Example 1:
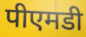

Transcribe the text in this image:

पीएमडी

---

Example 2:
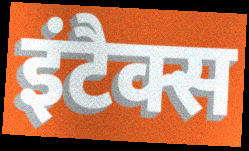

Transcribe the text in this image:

इंटैक्स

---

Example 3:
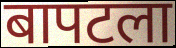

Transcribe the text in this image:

बापटला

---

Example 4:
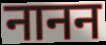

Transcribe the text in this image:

नानन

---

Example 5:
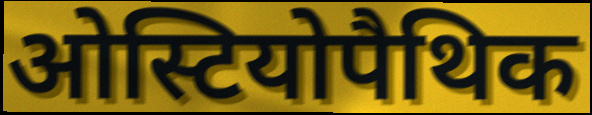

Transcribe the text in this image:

ओस्टियोपैथिक